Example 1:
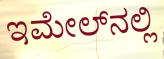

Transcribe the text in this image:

ಇಮೇಲ್‌ನಲ್ಲಿ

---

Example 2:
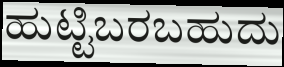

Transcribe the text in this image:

ಹುಟ್ಟಿಬರಬಹುದು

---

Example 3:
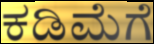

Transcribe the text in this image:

ಕಡಿಮೆಗೆ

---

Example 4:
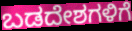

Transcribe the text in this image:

ಬಡದೇಶಗಳಿಗೆ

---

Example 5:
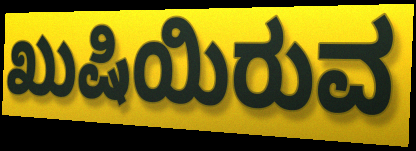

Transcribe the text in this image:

ಖುಷಿಯಿರುವ